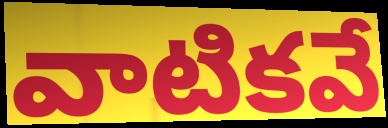
వాటికవే